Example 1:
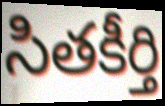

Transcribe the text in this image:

సితకీర్తి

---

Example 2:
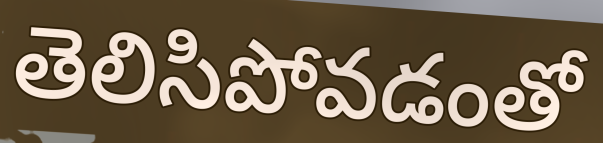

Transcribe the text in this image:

తెలిసిపోవడంతో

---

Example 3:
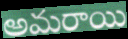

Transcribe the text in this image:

అమరాయి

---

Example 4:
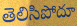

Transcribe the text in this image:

తెలిసిపోదూ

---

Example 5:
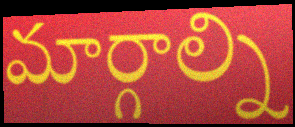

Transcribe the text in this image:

మార్గాల్ని